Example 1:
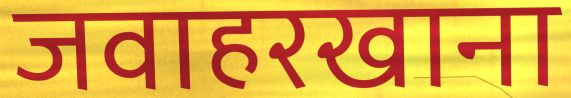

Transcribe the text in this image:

जवाहरखाना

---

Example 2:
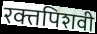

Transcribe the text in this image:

रक्तपिशवी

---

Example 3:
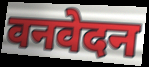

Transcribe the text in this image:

वनवेदन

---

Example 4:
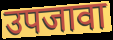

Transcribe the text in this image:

उपजावा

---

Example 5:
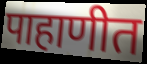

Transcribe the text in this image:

पाहाणीत